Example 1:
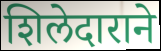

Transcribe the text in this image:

शिलेदाराने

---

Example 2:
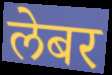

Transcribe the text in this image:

लेबर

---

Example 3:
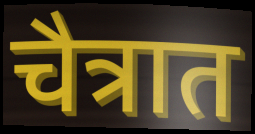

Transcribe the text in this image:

चैत्रात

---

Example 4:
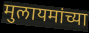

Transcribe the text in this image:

मुलायमांच्या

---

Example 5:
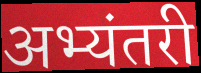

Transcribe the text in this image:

अभ्यंतरी